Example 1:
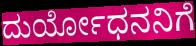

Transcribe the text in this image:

ದುರ್ಯೋಧನನಿಗೆ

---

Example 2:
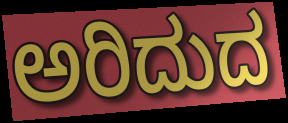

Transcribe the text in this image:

ಅರಿದುದ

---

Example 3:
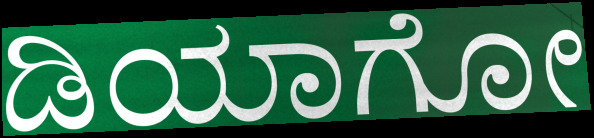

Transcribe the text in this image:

ಡಿಯಾಗೋ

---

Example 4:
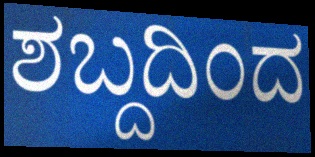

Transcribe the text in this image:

ಶಬ್ದದಿಂದ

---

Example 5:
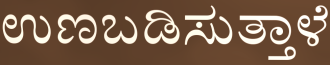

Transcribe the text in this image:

ಉಣಬಡಿಸುತ್ತಾಳೆ